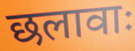
छलावाः